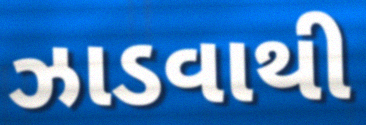
ઝાડવાથી